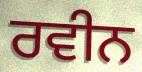
ਰਵੀਨ